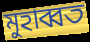
মুহাব্বত